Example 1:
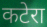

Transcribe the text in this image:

कटेरा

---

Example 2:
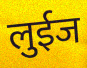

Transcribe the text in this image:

लुईज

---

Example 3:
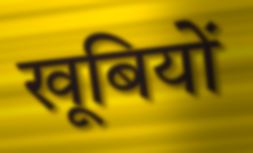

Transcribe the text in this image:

खूबियों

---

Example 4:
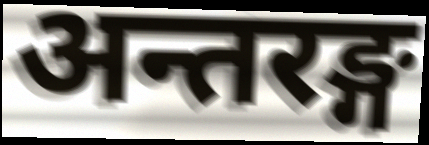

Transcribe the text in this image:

अन्तरङ्ग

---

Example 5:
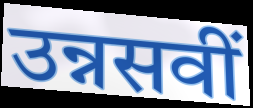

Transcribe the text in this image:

उन्नसवीं